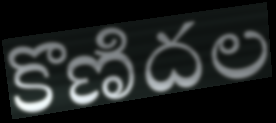
కొణిదల